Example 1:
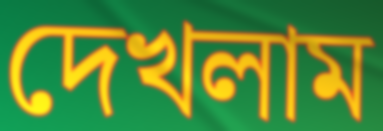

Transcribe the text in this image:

দেখলাম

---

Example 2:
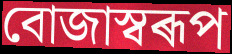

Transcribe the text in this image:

বোজাস্বৰূপ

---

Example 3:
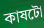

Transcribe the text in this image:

কাষটো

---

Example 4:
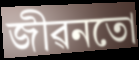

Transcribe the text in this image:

জীৱনতো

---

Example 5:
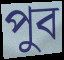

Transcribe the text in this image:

পুব